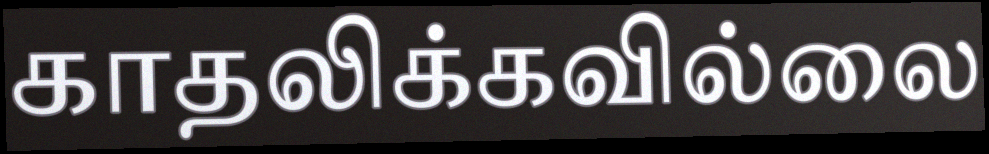
காதலிக்கவில்லை